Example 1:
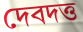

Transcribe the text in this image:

দেবদত্ত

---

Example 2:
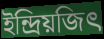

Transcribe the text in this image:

ইন্দ্রিয়জিৎ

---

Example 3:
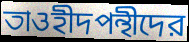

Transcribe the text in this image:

তাওহীদপন্থীদের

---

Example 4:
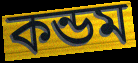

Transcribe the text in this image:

কন্ডম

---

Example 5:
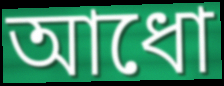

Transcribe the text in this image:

আধো